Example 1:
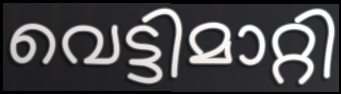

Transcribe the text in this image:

വെട്ടിമാറ്റി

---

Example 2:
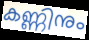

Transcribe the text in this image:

കണ്ണിനും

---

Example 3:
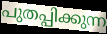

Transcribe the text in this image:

പുതപ്പിക്കുന്ന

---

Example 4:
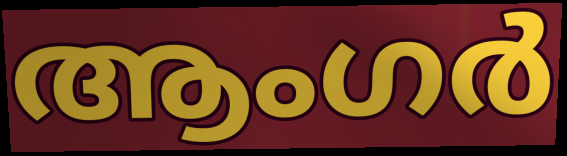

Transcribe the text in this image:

ആംഗർ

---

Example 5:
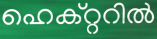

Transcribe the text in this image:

ഹെക്റ്ററിൽ